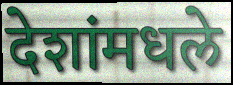
देशांमधले